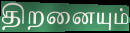
திறனையும்